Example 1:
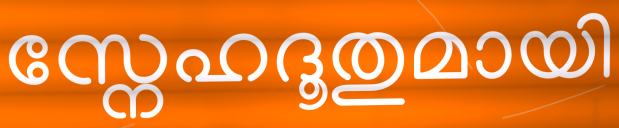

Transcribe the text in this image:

സ്നേഹദൂതുമായി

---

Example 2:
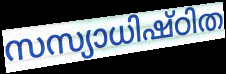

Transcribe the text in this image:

സസ്യാധിഷ്ഠിത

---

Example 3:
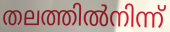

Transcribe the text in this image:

തലത്തിൽനിന്ന്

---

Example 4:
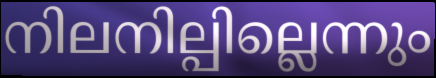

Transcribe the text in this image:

നിലനില്പില്ലെന്നും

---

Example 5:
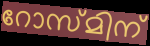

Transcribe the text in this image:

റോസ്മിന്